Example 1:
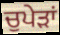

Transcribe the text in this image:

ਚੁਪੇੜਾਂ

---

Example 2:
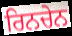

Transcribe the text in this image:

ਰਿਨਚੇਨ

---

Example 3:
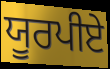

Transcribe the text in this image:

ਯੂਰਪੀਏ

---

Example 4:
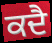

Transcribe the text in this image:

ਕਦੈ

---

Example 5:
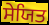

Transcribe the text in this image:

ਸੇਯਿਤ